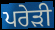
ਪਰੇੜੀ